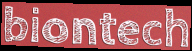
biontech